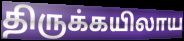
திருக்கயிலாய